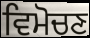
ਵਿਮੋਚਣ